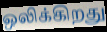
ஒலிக்கிறது